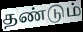
தண்டும்